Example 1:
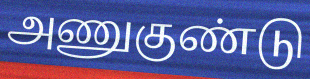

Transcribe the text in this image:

அணுகுண்டு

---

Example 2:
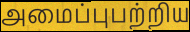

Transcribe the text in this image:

அமைப்புபற்றிய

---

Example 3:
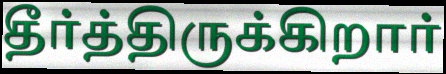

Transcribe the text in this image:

தீர்த்திருக்கிறார்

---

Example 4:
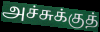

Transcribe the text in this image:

அச்சுக்குத்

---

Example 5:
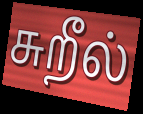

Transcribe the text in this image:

சுறீல்